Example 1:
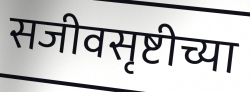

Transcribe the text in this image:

सजीवसृष्टीच्या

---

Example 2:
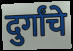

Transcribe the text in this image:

दुर्गांचे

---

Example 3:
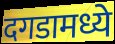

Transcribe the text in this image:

दगडामध्ये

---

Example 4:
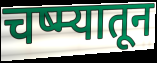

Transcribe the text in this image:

चष्म्यातून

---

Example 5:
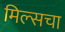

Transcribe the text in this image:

मिल्सचा